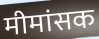
मीमांसक